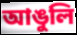
আঙুলি